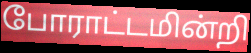
போராட்டமின்றி